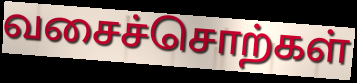
வசைச்சொற்கள்